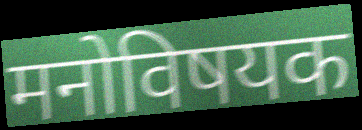
मनोविषयक